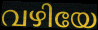
വഴിയേ